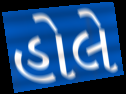
હોલે